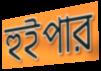
হুইপার